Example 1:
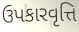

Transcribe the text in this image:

ઉપકારવૃત્તિ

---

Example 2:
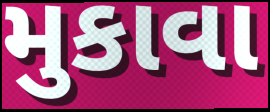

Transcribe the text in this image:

મુકાવા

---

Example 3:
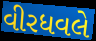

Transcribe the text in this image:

વીરધવલે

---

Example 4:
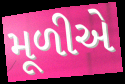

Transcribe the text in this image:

મૂળીએ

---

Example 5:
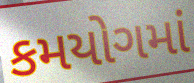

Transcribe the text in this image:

કમયોગમાં